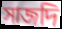
সাজদি